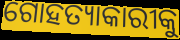
ଗୋହତ୍ୟାକାରୀକୁ